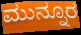
ಮುನ್ನೂರ